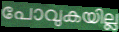
പോവുകയില്ല